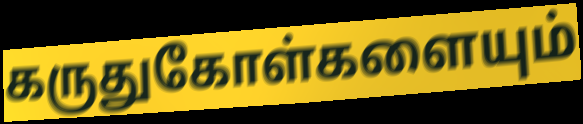
கருதுகோள்களையும்